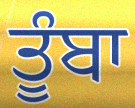
ਤੂੰਬਾ